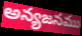
అన్యజనము